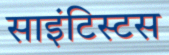
साइंटिस्टस